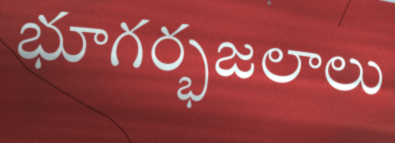
భూగర్భజలాలు